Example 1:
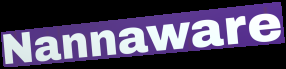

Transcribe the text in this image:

Nannaware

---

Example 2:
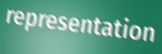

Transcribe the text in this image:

representation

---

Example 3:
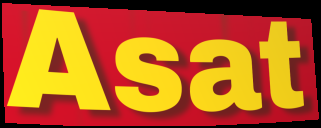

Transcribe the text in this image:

Asat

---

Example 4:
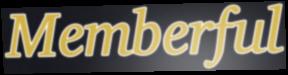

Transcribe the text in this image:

Memberful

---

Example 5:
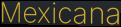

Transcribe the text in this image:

Mexicana